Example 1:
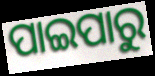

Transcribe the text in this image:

ପାଇପାରୁ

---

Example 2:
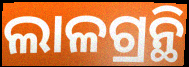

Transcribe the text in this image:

ଲାଳଗ୍ରନ୍ଥି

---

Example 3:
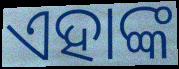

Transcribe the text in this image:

ଏହାଙ୍କ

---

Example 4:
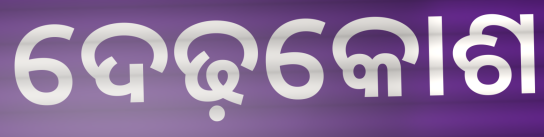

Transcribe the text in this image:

ଦେଢ଼କୋଶ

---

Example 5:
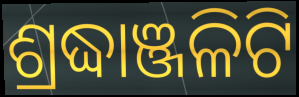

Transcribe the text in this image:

ଶ୍ରଦ୍ଧାଞ୍ଜଳିଟି